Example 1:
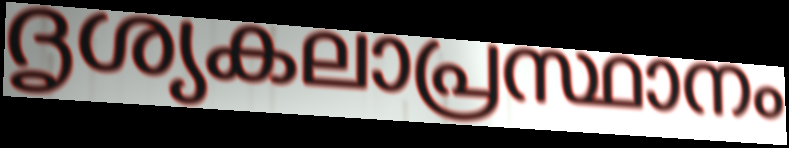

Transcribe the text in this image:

ദൃശ്യകലാപ്രസ്ഥാനം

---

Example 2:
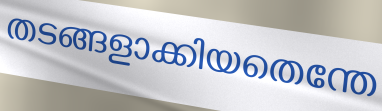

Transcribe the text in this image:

തടങ്ങളാക്കിയതെന്തേ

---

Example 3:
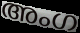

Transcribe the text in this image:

അംഗ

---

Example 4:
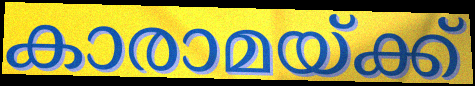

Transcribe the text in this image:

കാരാമയ്ക്ക്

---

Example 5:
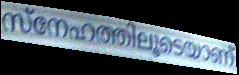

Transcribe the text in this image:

സ്നേഹത്തിലൂടെയാണ്